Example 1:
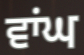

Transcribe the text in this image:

ਵਾਂਘ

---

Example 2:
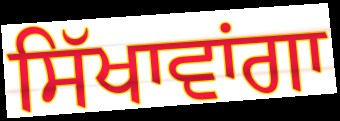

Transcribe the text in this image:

ਸਿੱਖਾਵਾਂਗਾ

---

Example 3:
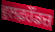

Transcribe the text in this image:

ਵੁਲਫ਼ਹੌਂਡਜ਼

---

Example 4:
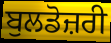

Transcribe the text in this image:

ਬੁਲਡੋਜ਼ਰੀ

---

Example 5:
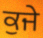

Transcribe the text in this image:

ਕੁਜੇ